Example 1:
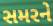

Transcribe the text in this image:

સમરને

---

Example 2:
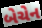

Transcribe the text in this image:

બેચેન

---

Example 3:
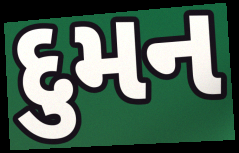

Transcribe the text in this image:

દુમન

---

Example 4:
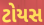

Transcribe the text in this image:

ટોયસ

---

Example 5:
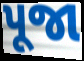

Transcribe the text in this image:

પૂજા